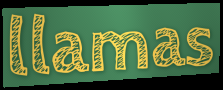
llamas